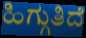
ಹಿಗ್ಗುತಿದೆ